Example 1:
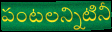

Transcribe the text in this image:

పంటలన్నిటినీ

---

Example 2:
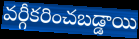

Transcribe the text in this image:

వర్గీకరించబడ్డాయి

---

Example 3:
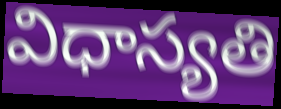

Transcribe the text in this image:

విధాస్యతి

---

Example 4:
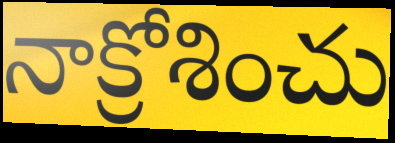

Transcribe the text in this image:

నాక్రోశించు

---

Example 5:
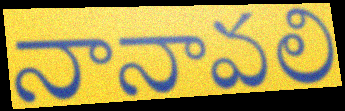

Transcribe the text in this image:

నానావలి